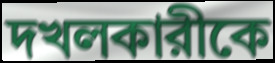
দখলকারীকে